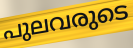
പുലവരുടെ